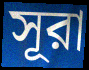
সূরা